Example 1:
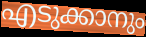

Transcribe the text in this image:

എടുക്കാനും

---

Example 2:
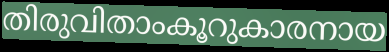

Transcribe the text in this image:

തിരുവിതാംകൂറുകാരനായ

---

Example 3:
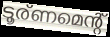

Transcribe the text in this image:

ടൂര്ണമെന്റ്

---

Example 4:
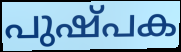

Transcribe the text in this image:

പുഷ്പക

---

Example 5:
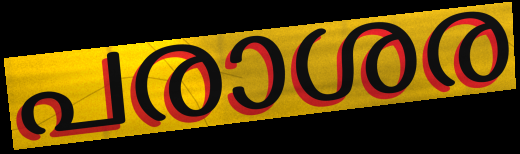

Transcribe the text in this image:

പരാശര